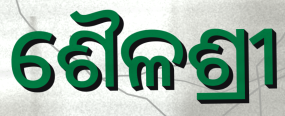
ଶୈଳଶ୍ରୀ